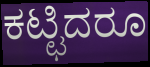
ಕಟ್ಟಿದರೂ